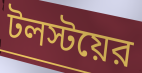
টলস্টয়ের